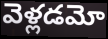
వెళ్లడమో